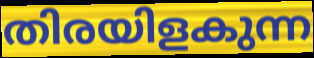
തിരയിളകുന്ന